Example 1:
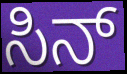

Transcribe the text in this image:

ಸಿನ್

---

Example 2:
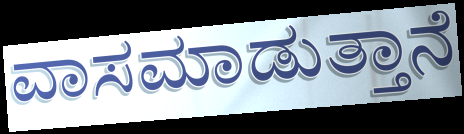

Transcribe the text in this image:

ವಾಸಮಾಡುತ್ತಾನೆ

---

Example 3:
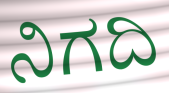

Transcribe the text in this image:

ನಿಗದಿ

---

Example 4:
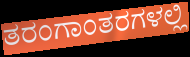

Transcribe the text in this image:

ತರಂಗಾಂತರಗಳಲ್ಲಿ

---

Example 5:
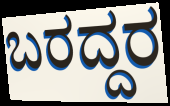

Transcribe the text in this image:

ಬರದ್ದರ